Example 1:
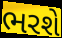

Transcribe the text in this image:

ભરશે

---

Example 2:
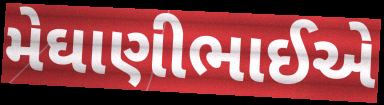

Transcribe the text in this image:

મેઘાણીભાઈએ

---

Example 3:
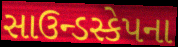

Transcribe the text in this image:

સાઉન્ડસ્કેપના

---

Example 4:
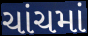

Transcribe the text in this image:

ચાંચમાં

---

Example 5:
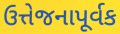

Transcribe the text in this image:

ઉત્તેજનાપૂર્વક